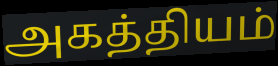
அகத்தியம்